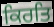
ਕਿਰਤਿ